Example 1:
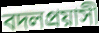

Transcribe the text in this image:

বদলপ্রয়াসী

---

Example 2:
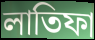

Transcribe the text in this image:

লাতিফা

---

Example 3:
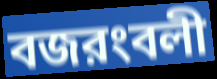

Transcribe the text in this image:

বজরংবলী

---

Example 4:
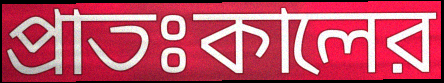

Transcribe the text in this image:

প্রাতঃকালের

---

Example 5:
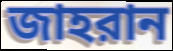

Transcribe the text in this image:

জাহরান